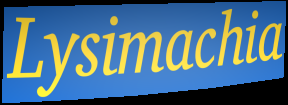
Lysimachia